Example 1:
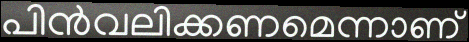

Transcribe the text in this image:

പിൻവലിക്കണമെന്നാണ്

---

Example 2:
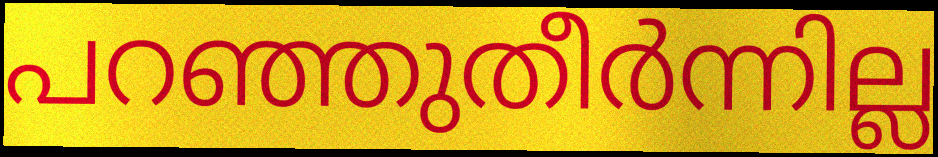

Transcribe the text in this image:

പറഞ്ഞുതീർന്നില്ല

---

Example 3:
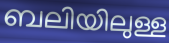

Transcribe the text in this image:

ബലിയിലുള്ള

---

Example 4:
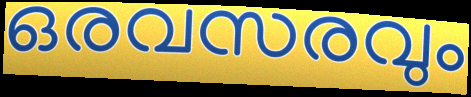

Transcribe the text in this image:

ഒരവസരവും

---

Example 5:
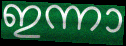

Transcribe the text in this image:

ഇന്നാ